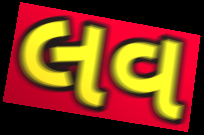
લવ